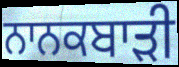
ਨਾਨਕਬਾੜੀ